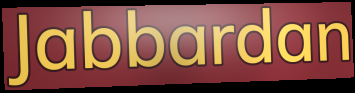
Jabbardan